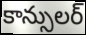
కాన్సులర్